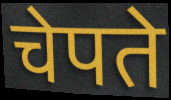
चेपते